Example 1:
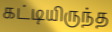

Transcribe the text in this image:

கட்டியிருந்த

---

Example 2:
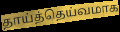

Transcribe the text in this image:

தாய்த்தெய்வமாக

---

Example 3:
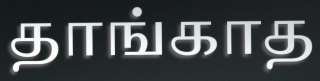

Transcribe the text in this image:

தாங்காத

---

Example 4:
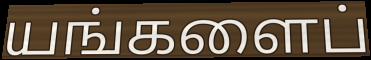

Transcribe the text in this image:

யங்களைப்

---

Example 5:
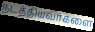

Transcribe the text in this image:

நடத்தியவர்களை